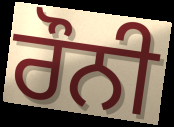
ਰੌਨੀ